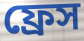
ফ্রেস